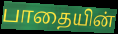
பாதையின்